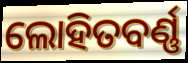
ଲୋହିତବର୍ଣ୍ଣ